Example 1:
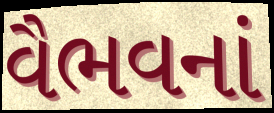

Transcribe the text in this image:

વૈભવનાં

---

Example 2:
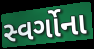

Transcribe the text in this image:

સ્વર્ગોના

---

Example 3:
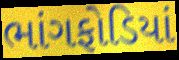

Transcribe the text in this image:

ભાંગફોડિયાં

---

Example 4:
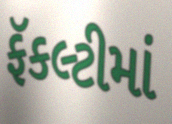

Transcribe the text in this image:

ફૅકલ્ટીમાં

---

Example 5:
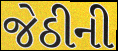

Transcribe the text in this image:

જેઠીની